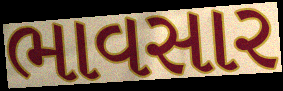
ભાવસાર